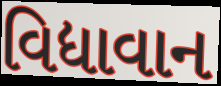
વિદ્યાવાન